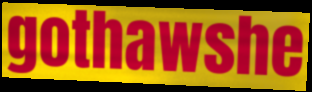
gothawshe